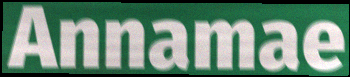
Annamae